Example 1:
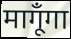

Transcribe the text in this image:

मागूँगा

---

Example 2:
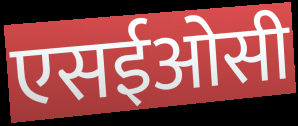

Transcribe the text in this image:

एसईओसी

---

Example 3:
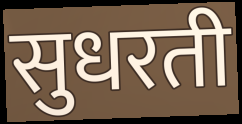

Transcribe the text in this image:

सुधरती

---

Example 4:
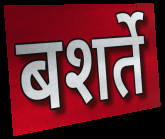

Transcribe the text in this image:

बशर्ते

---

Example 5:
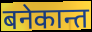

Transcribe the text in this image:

बनेकान्त